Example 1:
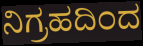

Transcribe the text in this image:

ನಿಗ್ರಹದಿಂದ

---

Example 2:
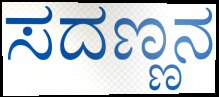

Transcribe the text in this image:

ಸದಣ್ಣನ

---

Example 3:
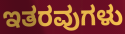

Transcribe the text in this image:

ಇತರವುಗಳು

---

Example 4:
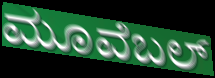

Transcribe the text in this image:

ಮೂವೆಬಲ್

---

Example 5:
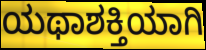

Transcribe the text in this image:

ಯಥಾಶಕ್ತಿಯಾಗಿ